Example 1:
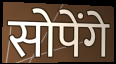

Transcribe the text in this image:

सोपेंगे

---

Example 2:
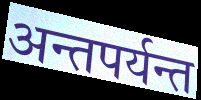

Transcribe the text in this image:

अन्तपर्यन्त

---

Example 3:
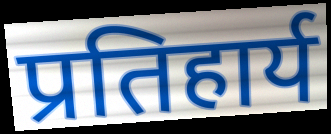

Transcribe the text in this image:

प्रतिहार्य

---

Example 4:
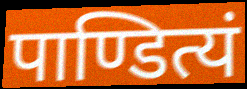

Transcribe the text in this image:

पाण्डित्यं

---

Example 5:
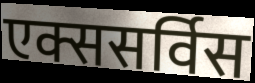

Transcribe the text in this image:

एक्ससर्विस